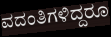
ವದಂತಿಗಳಿದ್ದರೂ